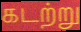
கடற்று